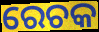
ରେଚକ